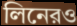
লিনেরও